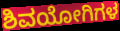
ಶಿವಯೋಗಿಗಳ